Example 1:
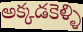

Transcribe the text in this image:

అక్కడకెళ్ళి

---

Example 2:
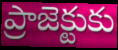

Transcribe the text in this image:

ప్రాజెక్టుకు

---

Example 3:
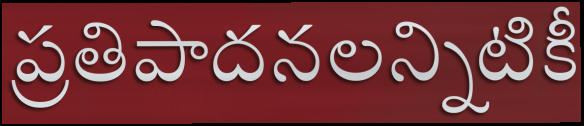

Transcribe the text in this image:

ప్రతిపాదనలన్నిటికీ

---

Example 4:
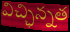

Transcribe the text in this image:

విచ్ఛిన్నత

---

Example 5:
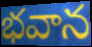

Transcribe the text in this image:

భవాన